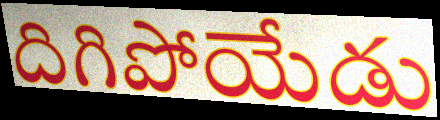
దిగిపోయేడు